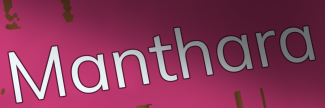
Manthara